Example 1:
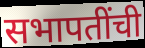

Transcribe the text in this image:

सभापतींची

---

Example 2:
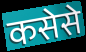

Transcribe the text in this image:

कसेसे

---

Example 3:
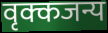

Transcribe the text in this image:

वृक्कजन्य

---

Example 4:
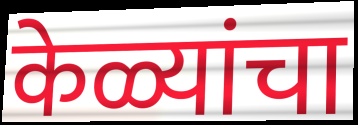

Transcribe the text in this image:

केळ्यांचा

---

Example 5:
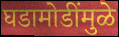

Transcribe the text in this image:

घडामोडींमुळे